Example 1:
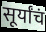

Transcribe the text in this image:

सूर्यांचं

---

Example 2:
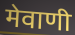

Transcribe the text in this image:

मेवाणी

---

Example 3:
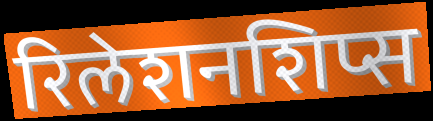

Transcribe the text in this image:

रिलेशनशिप्स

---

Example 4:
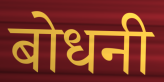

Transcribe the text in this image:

बोधनी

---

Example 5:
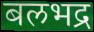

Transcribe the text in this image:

बलभद्र